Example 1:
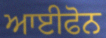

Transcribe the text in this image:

ਆਈਫੋਨ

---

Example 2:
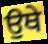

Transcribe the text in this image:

ਉਥੇ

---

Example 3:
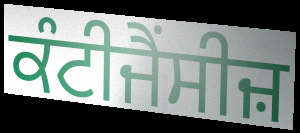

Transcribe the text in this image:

ਕੰਟੀਜੈਂਸੀਜ਼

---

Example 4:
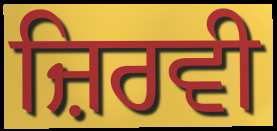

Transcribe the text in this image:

ਜ਼ਿਰਵੀ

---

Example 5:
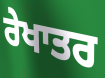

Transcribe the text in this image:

ਰੇਖਾਤਰ